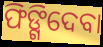
ଫିଙ୍ଗିଦେବା